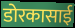
डोरकासाई